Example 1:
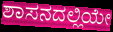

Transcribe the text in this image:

ಶಾಸನದಲ್ಲಿಯೇ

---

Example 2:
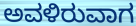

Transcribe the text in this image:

ಅವಳಿರುವಾಗ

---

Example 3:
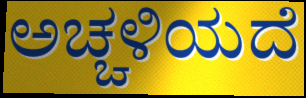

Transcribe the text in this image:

ಅಚ್ಚಳಿಯದೆ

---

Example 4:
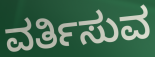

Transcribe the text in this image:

ವರ್ತಿಸುವ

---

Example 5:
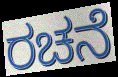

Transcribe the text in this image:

ರಚನೆ